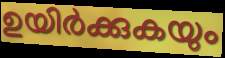
ഉയിർക്കുകയും